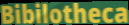
Bibilotheca